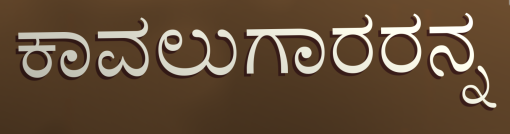
ಕಾವಲುಗಾರರನ್ನ